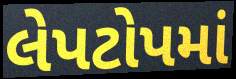
લેપટોપમાં